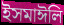
ইসমাঈলি